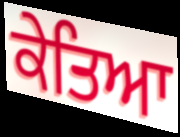
ਕੇਤਿਆ